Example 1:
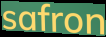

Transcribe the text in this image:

safron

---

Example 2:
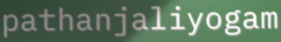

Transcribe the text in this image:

pathanjaliyogam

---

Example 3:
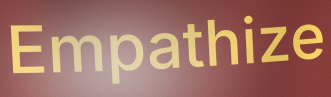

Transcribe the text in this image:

Empathize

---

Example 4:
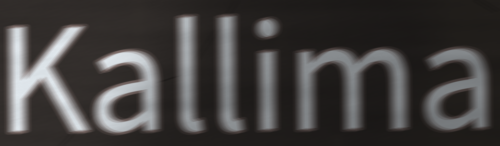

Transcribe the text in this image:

Kallima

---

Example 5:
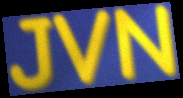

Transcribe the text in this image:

JVN